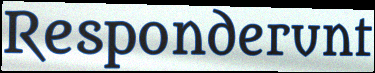
Responderunt